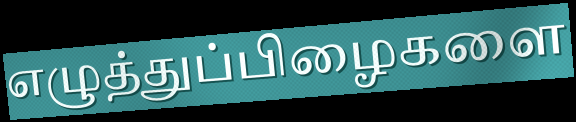
எழுத்துப்பிழைகளை